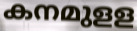
കനമുളള